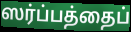
ஸர்ப்பத்தைப்